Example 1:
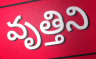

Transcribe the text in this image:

వృత్తిని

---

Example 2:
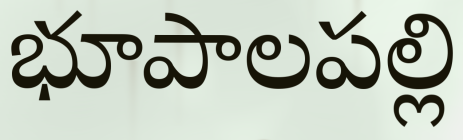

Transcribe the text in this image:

భూపాలపల్లి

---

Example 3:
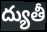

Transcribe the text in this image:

ద్యుతీ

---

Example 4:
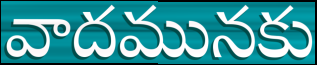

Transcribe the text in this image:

వాదమునకు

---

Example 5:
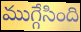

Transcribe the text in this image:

ముగ్గేసింది